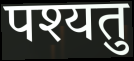
पश्यतु